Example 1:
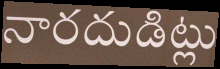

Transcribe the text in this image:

నారదుడిట్లు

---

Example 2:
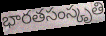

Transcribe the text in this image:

భారతసంస్కృతి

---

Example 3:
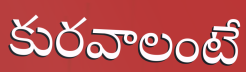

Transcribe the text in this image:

కురవాలంటే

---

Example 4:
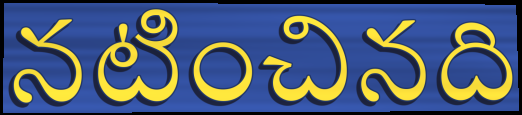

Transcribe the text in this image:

నటించినది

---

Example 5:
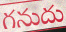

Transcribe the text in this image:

గనుదు